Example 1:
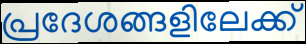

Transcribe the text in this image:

പ്രദേശങ്ങളിലേക്ക്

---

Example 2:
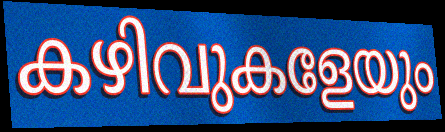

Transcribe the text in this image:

കഴിവുകളേയും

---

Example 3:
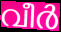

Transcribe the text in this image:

വീർ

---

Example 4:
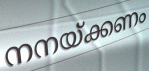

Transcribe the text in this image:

നനയ്ക്കണം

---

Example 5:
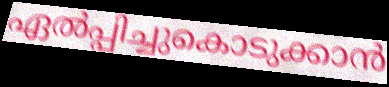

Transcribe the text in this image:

ഏൽപ്പിച്ചുകൊടുക്കാൻ